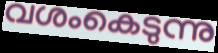
വശംകെടുന്നു